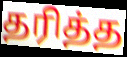
தரித்த